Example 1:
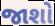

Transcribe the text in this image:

જાશો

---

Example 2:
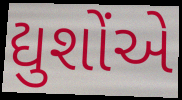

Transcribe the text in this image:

દ્યુશોંએ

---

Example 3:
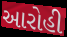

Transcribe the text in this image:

આરોહી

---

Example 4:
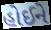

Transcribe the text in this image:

હોઈને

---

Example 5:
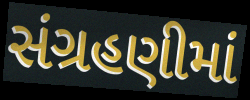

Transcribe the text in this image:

સંગ્રહણીમાં